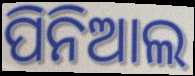
ପିନିଆଲ